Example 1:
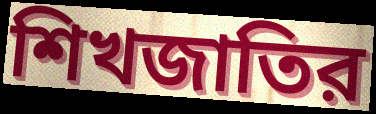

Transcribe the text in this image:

শিখজাতির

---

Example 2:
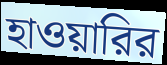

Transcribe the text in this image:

হাওয়ারির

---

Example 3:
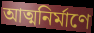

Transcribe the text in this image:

আত্মনির্মাণে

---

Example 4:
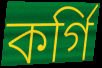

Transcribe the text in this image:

কর্গি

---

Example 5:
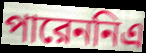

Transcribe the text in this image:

পারেননিএ